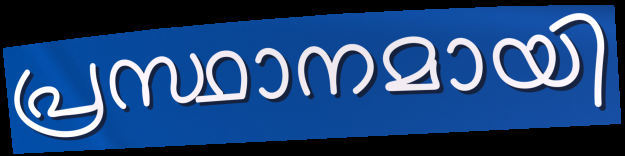
പ്രസ്ഥാനമായി